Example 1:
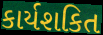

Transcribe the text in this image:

કાર્યશકિત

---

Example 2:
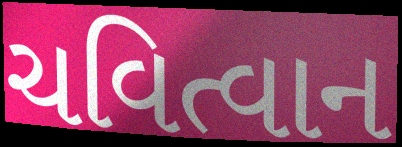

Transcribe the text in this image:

ચવિત્વાન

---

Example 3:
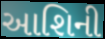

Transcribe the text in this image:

આશિની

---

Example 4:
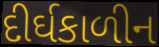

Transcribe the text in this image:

દીર્ઘકાળીન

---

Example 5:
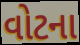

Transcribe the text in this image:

વોટના